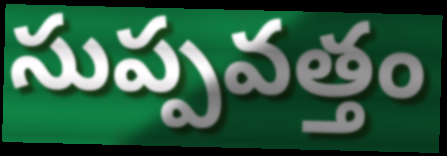
సుప్పవత్తం